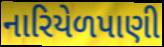
નારિયેળપાણી